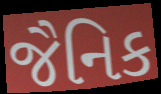
જૈનિક